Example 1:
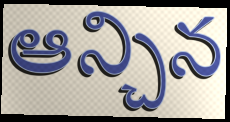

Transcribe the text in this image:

ఆన్చిన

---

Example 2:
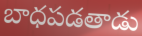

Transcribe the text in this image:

బాధపడతాడు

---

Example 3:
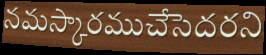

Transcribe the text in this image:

నమస్కారముచేసెదరని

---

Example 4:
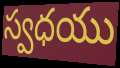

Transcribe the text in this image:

స్వధయు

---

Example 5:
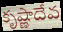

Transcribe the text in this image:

కృష్ణాదేవ